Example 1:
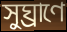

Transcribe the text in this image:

সুঘ্রাণে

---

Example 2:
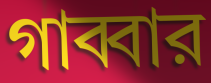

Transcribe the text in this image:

গাব্বার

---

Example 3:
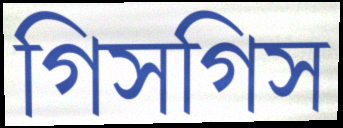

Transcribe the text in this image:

গিসগিস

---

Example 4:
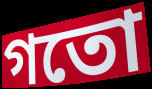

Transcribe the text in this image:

গতো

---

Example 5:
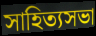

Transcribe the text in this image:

সাহিত্যসভা